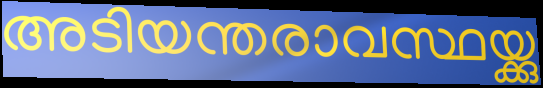
അടിയന്തരാവസ്ഥയ്ക്കു